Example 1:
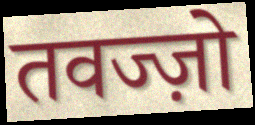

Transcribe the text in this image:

तवज्ज़ो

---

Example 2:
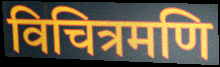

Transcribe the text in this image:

विचित्रमणि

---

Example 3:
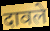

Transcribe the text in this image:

दावले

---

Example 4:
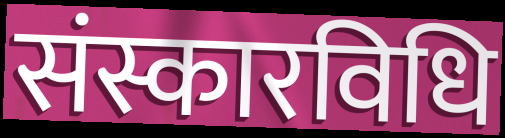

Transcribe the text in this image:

संस्कारविधि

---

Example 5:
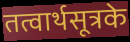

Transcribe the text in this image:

तत्वार्थसूत्रके